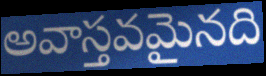
అవాస్తవమైనది